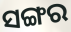
ସଙ୍ଗର